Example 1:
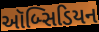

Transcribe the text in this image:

ઑબ્સિડિયન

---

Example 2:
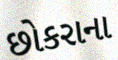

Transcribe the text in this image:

છોકરાના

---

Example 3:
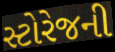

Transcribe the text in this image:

સ્ટોરેજની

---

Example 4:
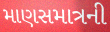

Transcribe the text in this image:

માણસમાત્રની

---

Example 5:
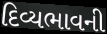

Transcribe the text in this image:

દિવ્યભાવની